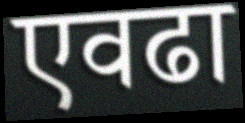
एवढा